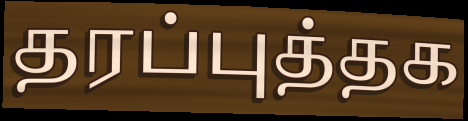
தரப்புத்தக